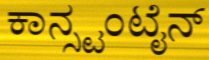
ಕಾನ್ಸ್ಟಂಟೈನ್